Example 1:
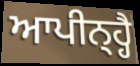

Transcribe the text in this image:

ਆਪੀਨ੍ਹ੍ਹੈ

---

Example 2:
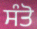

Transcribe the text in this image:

ਸੰਤੋ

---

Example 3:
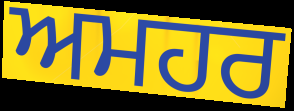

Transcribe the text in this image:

ਅਮਹਰ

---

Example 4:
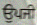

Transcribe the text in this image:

ਉਪਜੀ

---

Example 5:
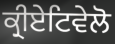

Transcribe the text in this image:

ਕ੍ਰੀਏਟਿਵੇਲੋ